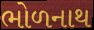
ભોળનાથ